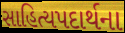
સાહિત્યપદાર્થના